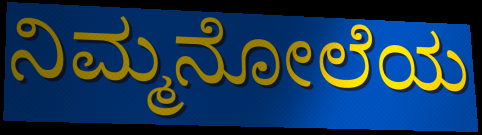
ನಿಮ್ಮನೋಲೆಯ